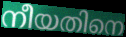
നീയതിനെ